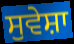
ਸੁਵੇਸ਼ਾ